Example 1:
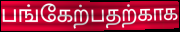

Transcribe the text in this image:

பங்கேற்பதற்காக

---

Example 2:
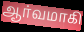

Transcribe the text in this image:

ஆர்வமாகி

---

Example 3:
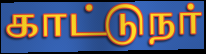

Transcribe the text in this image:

காட்டுநர்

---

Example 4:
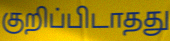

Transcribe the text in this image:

குறிப்பிடாதது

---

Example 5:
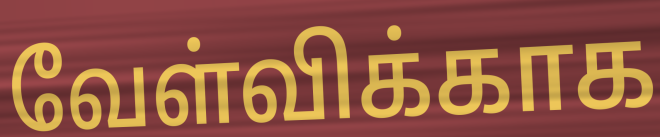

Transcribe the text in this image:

வேள்விக்காக